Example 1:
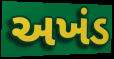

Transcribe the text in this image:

અખંડ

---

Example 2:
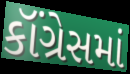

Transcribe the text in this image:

કૉંગ્રેસમાં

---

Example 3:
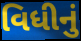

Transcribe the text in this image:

વિધીનું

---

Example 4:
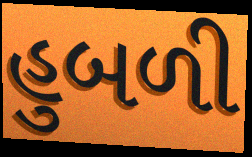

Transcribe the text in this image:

હુબળી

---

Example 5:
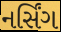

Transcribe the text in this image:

નર્સિંગ